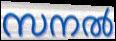
സനൽ